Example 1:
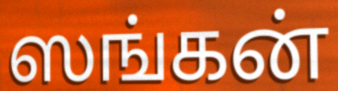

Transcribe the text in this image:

ஸங்கன்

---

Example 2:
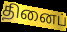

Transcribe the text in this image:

தினைப்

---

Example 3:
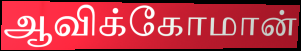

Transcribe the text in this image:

ஆவிக்கோமான்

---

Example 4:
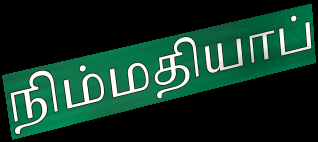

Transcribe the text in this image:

நிம்மதியாப்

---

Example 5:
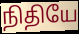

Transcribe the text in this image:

நிதியே